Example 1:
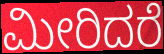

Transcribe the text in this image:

ಮೀರಿದರೆ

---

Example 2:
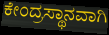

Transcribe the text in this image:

ಕೇಂದ್ರಸ್ಥಾನವಾಗಿ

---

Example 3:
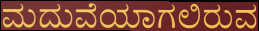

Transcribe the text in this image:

ಮದುವೆಯಾಗಲಿರುವ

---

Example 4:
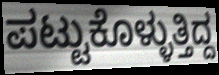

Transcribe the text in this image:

ಪಟ್ಟುಕೊಳ್ಳುತ್ತಿದ್ದ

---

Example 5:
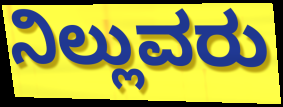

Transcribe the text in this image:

ನಿಲ್ಲುವರು